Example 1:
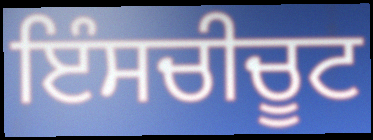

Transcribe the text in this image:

ਇੰਸਚੀਚੂਟ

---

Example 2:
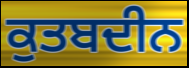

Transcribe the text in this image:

ਕੁਤਬਦੀਨ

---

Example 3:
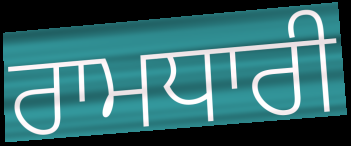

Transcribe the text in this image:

ਰਾਮਧਾਰੀ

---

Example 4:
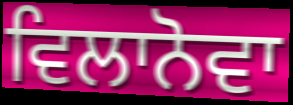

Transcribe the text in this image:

ਵਿਲਾਨੋਵਾ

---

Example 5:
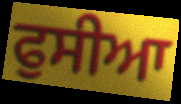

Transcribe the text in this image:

ਫੁਸੀਆ